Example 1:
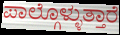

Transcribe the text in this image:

ಪಾಲ್ಗೊಳ್ಳುತ್ತಾರೆ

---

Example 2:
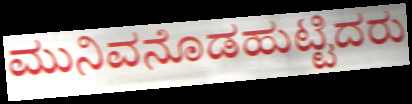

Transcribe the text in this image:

ಮುನಿವನೊಡಹುಟ್ಟಿದರು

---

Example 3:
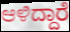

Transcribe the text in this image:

ಆಳಿದ್ದಾರೆ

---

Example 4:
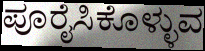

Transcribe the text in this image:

ಪೂರೈಸಿಕೊಳ್ಳುವ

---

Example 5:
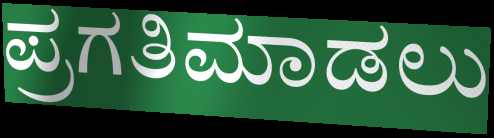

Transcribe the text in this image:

ಪ್ರಗತಿಮಾಡಲು